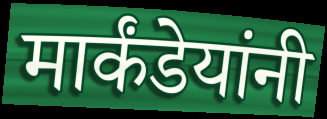
मार्कंडेयांनी